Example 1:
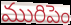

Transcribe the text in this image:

మురిపెం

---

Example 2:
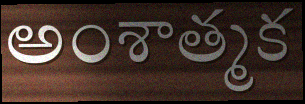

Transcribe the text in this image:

అంశాత్మక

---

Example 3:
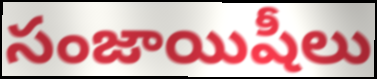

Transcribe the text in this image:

సంజాయిషీలు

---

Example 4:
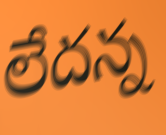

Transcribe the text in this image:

లేదన్న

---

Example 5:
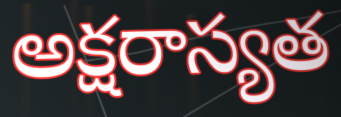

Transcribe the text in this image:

అక్షరాస్యత